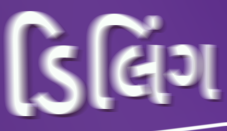
ડિલિંગ